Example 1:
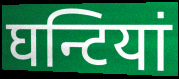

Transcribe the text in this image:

घन्टियां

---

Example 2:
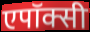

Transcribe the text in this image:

एपॉक्सी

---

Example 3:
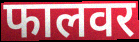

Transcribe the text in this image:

फालवर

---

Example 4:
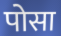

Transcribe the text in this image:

पोसा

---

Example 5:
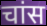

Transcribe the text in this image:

चांस